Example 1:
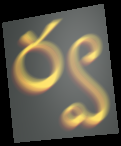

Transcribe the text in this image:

ర్వ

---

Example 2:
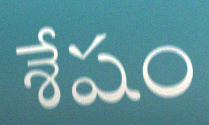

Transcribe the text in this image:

శేషం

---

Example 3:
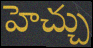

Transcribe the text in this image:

హెచ్చు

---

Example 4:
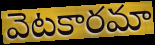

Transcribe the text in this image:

వెటకారమా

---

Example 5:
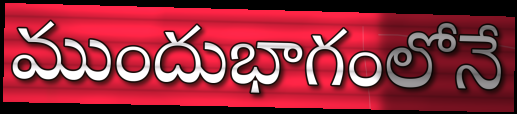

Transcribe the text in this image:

ముందుభాగంలోనే